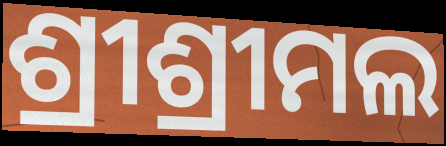
ଶ୍ରୀଶ୍ରୀମଲ